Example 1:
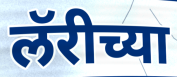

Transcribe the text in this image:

लॅरीच्या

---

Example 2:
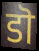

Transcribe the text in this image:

डॊ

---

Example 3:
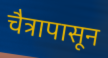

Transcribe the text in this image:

चैत्रापासून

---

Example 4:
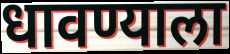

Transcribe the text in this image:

धावण्याला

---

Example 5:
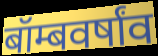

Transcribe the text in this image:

बॉम्बवर्षांव